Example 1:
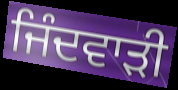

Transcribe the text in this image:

ਜਿੰਦਵਾੜੀ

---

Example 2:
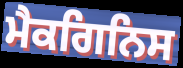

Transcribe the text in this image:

ਮੈਕਗਿਨਿਸ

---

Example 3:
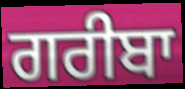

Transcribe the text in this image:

ਗਰੀਬਾ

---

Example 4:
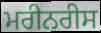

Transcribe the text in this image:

ਮਰੀਨਰੀਸ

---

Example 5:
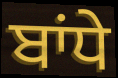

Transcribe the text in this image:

ਬਾਂਧੇ